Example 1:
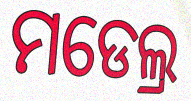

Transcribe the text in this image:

ମଡେଲ୍ର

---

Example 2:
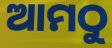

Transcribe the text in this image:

ଆମଠୁ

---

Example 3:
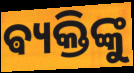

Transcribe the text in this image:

ଵ୍ୟକ୍ତିଙ୍କୁ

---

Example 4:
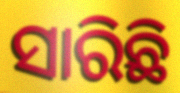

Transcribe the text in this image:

ସାରିଛି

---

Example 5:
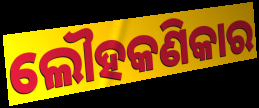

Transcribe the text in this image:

ଲୌହକଣିକାର